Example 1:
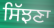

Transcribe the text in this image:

ਸਿੱਝਣਾ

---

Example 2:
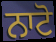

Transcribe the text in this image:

ਨਾਟੋ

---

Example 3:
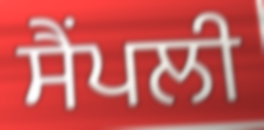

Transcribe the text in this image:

ਸੈਂਪਲੀ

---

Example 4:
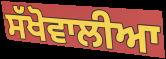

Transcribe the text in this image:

ਸੱਖੋਵਾਲੀਆ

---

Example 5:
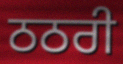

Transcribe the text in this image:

ਠਠਰੀ